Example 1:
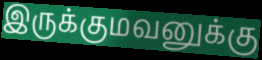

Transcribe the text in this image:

இருக்குமவனுக்கு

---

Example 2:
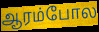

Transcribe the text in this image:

ஆரம்போல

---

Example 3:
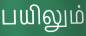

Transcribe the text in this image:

பயிலும்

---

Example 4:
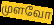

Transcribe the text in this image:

முளவோ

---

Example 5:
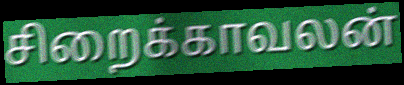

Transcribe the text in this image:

சிறைக்காவலன்